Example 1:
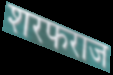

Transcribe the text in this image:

शरफराज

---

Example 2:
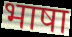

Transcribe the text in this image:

भाषा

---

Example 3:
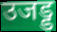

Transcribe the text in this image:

उजड्ड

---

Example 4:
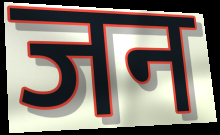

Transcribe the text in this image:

जन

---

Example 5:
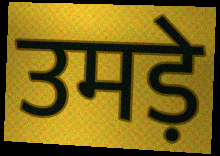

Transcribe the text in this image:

उमड़े